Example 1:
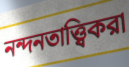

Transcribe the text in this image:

নন্দনতাত্ত্বিকরা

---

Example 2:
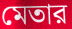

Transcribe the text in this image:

মেতার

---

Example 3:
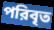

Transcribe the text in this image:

পরিবৃত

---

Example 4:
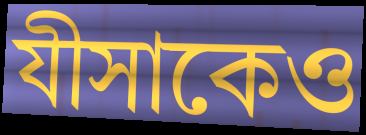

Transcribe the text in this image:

যীসাকেও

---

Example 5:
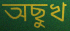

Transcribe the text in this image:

অছুখ